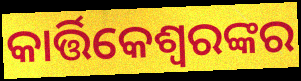
କାର୍ତ୍ତିକେଶ୍ୱରଙ୍କର